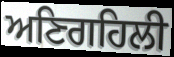
ਅਣਿਗਹਿਲੀ